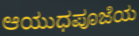
ಆಯುಧಪೂಜೆಯ